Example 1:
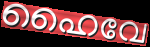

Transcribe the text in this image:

ഹൈവേ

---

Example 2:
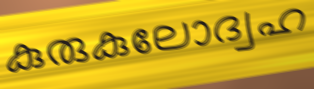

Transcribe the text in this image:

കുരുകുലോദ്വഹ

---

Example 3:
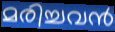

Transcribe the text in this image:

മരിച്ചവൻ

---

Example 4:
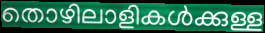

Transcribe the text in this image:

തൊഴിലാളികൾക്കുള്ള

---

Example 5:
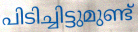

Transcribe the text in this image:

പിടിച്ചിട്ടുമുണ്ട്